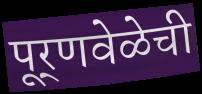
पूर्णवेळेची